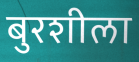
बुरशीला